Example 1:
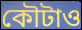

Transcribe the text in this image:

কৌটাও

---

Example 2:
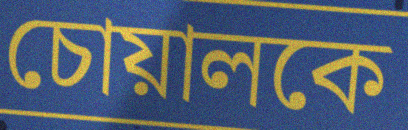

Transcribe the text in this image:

চোয়ালকে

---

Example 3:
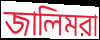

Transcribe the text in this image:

জালিমরা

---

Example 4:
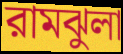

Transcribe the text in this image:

রামঝুলা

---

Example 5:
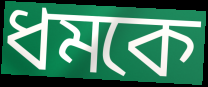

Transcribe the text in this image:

ধমকে